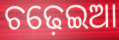
ଚଢ଼େଇଆ